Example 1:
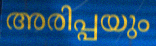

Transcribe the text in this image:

അരിപ്പയും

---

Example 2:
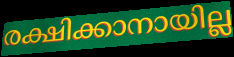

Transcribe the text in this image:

രക്ഷിക്കാനായില്ല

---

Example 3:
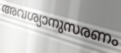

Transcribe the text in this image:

അവശ്യാനുസരണം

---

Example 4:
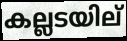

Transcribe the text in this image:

കല്ലടയില്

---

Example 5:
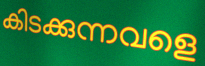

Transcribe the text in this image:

കിടക്കുന്നവളെ